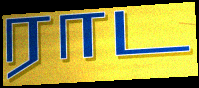
ராட